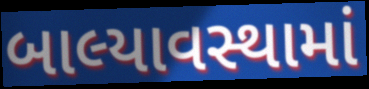
બાલ્યાવસ્થામાં